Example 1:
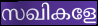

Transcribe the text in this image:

സഖികളേ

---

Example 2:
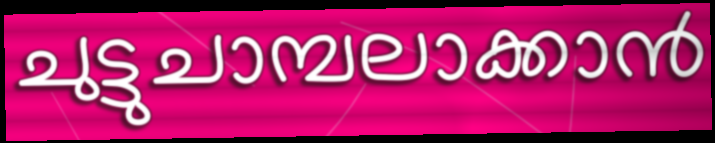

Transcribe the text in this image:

ചുട്ടുചാമ്പലാക്കാൻ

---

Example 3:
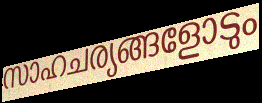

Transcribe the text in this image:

സാഹചര്യങ്ങളോടും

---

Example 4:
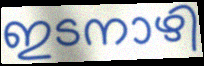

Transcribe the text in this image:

ഇടനാഴി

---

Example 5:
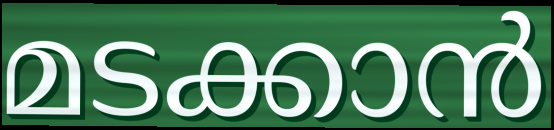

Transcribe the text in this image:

മടക്കാൻ